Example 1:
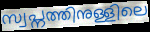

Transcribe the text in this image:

സ്വപ്നത്തിനുള്ളിലെ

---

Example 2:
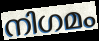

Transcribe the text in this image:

നിഗമം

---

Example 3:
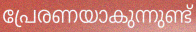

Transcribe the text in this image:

പ്രേരണയാകുന്നുണ്ട്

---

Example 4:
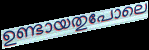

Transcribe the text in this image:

ഉണ്ടായതുപോലെ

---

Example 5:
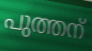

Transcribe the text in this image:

പുത്തന്